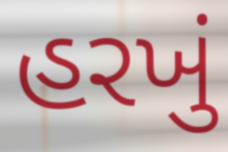
હરખું